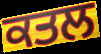
ਕਤਲ